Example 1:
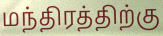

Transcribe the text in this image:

மந்திரத்திற்கு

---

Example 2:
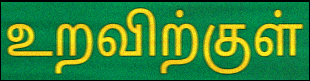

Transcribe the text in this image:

உறவிற்குள்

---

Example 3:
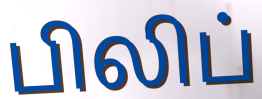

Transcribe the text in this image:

பிலிப்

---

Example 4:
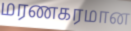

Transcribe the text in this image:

மரணகரமான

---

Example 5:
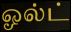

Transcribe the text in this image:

ஓல்ட்